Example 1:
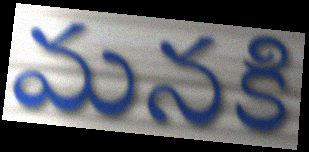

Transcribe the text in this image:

మనకి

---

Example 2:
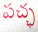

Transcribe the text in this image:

పచ్ఛ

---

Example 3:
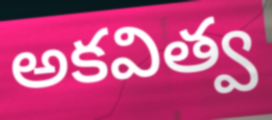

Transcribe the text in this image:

అకవిత్వ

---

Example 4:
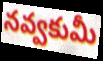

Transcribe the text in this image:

నవ్వకుమీ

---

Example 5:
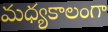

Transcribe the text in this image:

మధ్యకాలంగా